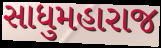
સાધુમહારાજ